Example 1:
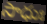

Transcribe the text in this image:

సాధుః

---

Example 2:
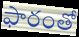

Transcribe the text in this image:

ఫారంతో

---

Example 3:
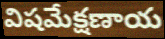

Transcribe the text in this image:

విషమేక్షణాయ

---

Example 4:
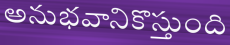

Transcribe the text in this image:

అనుభవానికొస్తుంది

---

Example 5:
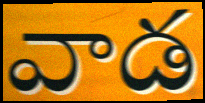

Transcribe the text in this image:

వాడ